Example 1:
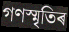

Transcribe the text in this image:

গণস্মৃতিৰ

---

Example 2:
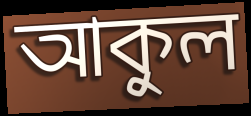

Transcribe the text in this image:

আকুল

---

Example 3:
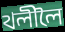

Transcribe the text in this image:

থলীলৈ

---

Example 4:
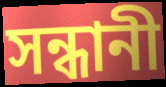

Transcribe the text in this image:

সন্ধানী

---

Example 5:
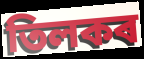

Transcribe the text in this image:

তিলকৰ